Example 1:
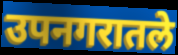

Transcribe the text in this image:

उपनगरातले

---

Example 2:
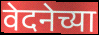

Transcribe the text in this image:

वेदनेच्या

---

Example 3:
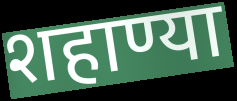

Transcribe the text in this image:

शहाण्या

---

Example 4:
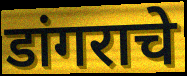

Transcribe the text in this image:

डांगराचे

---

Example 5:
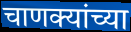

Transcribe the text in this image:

चाणक्यांच्या